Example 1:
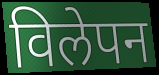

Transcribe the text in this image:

विलेपन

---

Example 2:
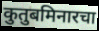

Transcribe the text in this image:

कुतुबमिनारचा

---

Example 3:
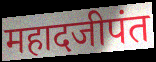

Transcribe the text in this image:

महादजीपंत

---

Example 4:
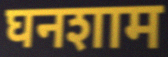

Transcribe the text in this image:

घनशाम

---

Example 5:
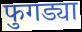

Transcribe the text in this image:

फुगड्या